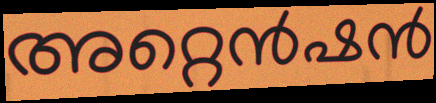
അറ്റെൻഷൻ